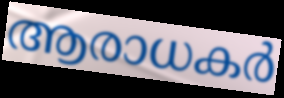
ആരാധകർ